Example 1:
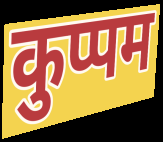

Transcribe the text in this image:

कुप्पम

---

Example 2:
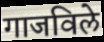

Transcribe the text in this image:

गाजविले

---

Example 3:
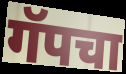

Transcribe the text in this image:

गॅपचा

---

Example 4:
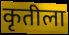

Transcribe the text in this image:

कृतीला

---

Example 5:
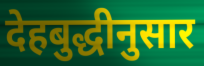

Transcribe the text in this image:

देहबुद्धीनुसार